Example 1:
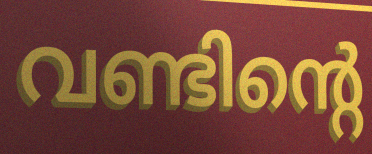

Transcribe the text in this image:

വണ്ടിന്റെ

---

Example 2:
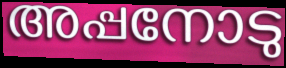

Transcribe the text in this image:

അപ്പനോടു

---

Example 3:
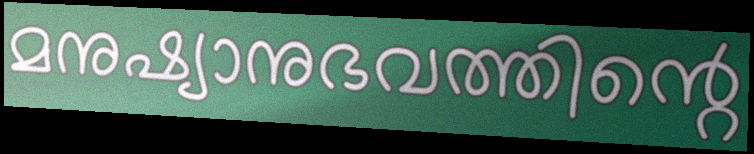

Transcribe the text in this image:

മനുഷ്യാനുഭവത്തിന്റെ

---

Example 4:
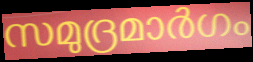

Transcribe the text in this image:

സമുദ്രമാർഗം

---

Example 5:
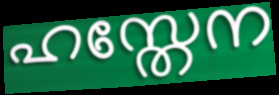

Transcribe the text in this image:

ഹസ്തേന